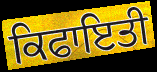
ਕਿਫਾਇਤੀ